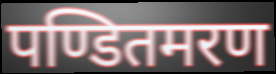
पण्डितमरण